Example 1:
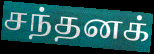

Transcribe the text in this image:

சந்தனக்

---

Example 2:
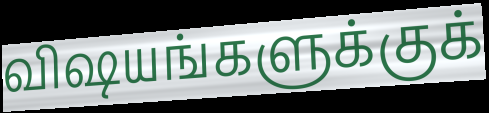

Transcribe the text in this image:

விஷயங்களுக்குக்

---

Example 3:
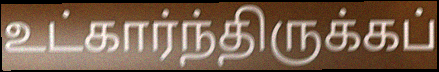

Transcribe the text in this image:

உட்கார்ந்திருக்கப்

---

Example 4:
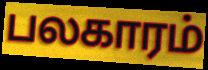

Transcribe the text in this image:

பலகாரம்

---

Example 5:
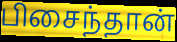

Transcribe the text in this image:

பிசைந்தான்